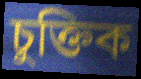
চুক্তিক